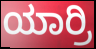
ಯಾರ್ರಿ